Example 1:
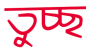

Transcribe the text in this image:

তুচ্ছ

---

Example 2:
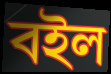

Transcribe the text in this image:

বইল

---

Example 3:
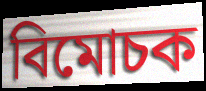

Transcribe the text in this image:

বিমোচক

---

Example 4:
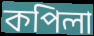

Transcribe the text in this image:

কপিলা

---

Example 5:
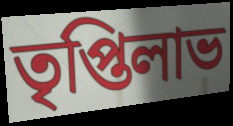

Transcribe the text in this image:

তৃপ্তিলাভ